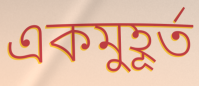
একমুহূর্ত